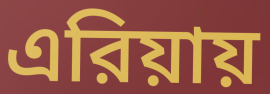
এরিয়ায়